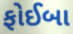
ફોઈબા